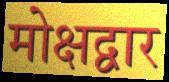
मोक्षद्वार